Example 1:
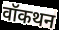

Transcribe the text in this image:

वॉकथन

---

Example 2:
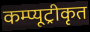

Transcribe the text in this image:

कम्प्यूट्रीकृत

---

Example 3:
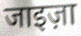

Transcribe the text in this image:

जाइज़ा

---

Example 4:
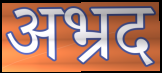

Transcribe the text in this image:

अभ्रद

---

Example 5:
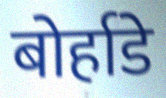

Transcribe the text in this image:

बोर्हाडे